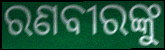
ରଣବୀରଙ୍କୁ